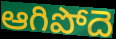
ఆగిపోదె